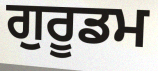
ਗੁਰੂਡਮ